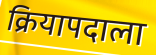
क्रियापदाला